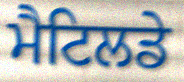
ਮੈਟਿਲਡੇ